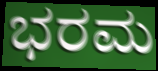
ಭರಮ